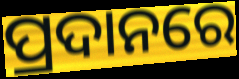
ପ୍ରଦାନରେ